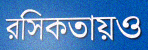
রসিকতায়ও